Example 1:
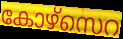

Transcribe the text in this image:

കോഴ്സെറ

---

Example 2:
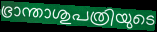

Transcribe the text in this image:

ഭ്രാന്താശുപത്രിയുടെ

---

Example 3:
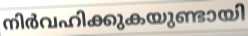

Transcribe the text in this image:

നിർവഹിക്കുകയുണ്ടായി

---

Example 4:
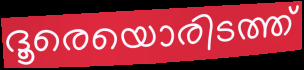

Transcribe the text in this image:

ദൂരെയൊരിടത്ത്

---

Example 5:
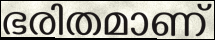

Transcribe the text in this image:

ഭരിതമാണ്